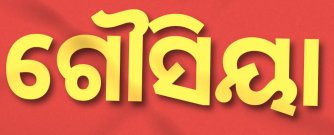
ଗୌସିୟା